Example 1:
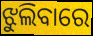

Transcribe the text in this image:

ଝୁଲିବାରେ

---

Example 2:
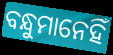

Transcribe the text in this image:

ବନ୍ଧୁମାନେହିଁ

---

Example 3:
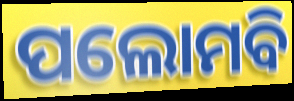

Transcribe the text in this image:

ପଲୋମବି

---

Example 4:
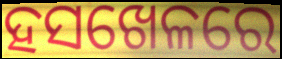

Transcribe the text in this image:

ହସଖେଳରେ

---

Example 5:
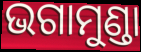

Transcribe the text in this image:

ଭଗାମୁଣ୍ଡା